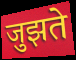
जुझते